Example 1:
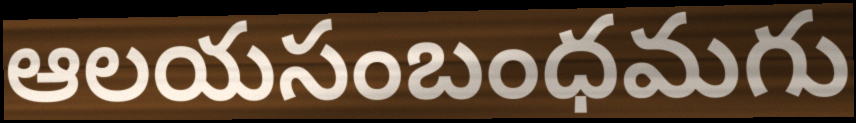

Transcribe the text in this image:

ఆలయసంబంధమగు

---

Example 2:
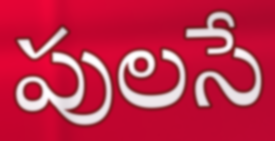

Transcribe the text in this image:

పులసే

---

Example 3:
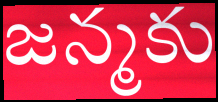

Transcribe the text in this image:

జన్మకు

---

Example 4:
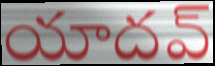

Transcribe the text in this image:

యాదవ్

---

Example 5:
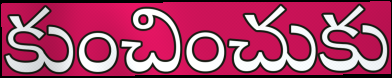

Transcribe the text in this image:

కుంచించుకు